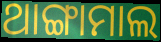
ଥାଙ୍ଗାମାଲ